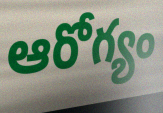
ఆరోగ్యం